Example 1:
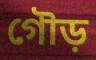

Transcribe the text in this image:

গৌড়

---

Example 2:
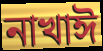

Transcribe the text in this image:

নাখাঈ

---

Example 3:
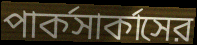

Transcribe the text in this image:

পার্কসার্কাসের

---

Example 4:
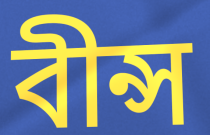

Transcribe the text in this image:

বীন্স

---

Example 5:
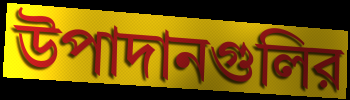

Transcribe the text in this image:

উপাদানগুলির